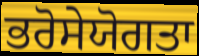
ਭਰੋਸੇਯੋਗਤਾ